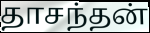
தாசந்தன்